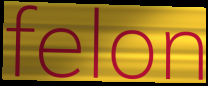
felon